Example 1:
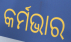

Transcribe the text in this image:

କର୍ମଭାର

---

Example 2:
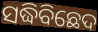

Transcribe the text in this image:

ସଦ୍ଧିବିଛେଦ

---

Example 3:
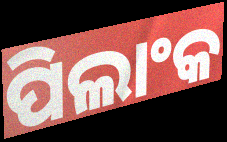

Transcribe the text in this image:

ପିଲାଂକ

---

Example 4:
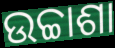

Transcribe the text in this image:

ଉଚ୍ଚାଶା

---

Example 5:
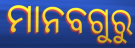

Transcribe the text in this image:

ମାନବଗୁରୁ